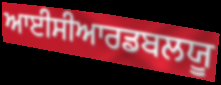
ਆਈਸੀਆਰਡਬਲਯੂ